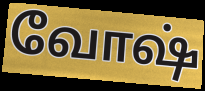
வோஷ்